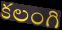
కలంగి